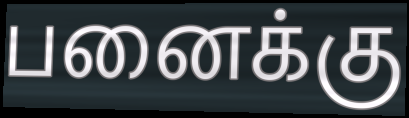
பனைக்கு